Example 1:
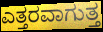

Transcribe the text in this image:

ಎತ್ತರವಾಗುತ್ತ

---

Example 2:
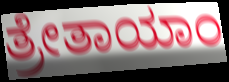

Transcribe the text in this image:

ತ್ರೇತಾಯಾಂ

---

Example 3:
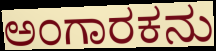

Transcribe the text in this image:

ಅಂಗಾರಕನು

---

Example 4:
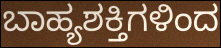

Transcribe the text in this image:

ಬಾಹ್ಯಶಕ್ತಿಗಳಿಂದ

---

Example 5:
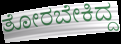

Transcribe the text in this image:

ತೋರಬೇಕಿದ್ದ